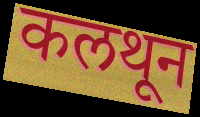
कलथून